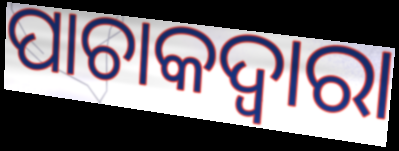
ପାଚାକଦ୍ଵାରା